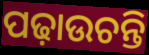
ପଢ଼ାଉଚନ୍ତି